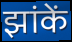
झांकें